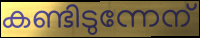
കണ്ടിടുന്നേന്